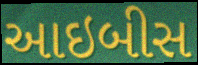
આઇબીસ